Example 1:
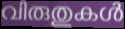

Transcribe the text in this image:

വിരുതുകൾ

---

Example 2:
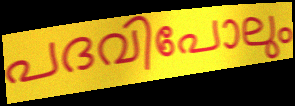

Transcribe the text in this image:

പദവിപോലും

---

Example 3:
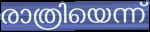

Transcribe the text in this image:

രാത്രിയെന്ന്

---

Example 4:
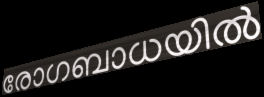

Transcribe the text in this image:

രോഗബാധയിൽ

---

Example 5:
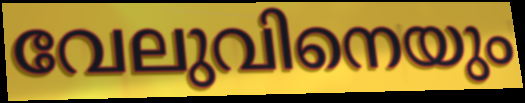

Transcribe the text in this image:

വേലുവിനെയും